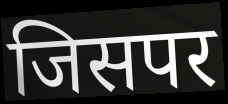
जिसपर